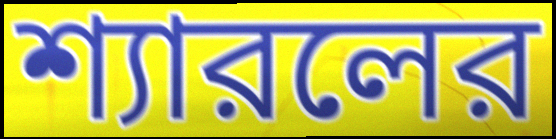
শ্যারলের